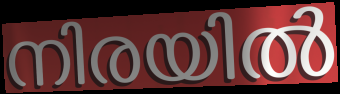
നിരയിൽ